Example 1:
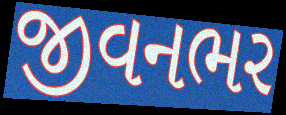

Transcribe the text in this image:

જીવનભર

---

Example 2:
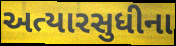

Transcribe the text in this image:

અત્યારસુધીના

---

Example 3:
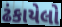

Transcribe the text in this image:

ઢંકાયેલો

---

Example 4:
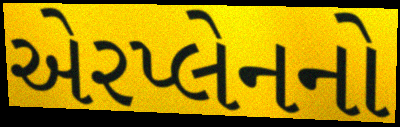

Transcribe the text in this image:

એરપ્લેનનો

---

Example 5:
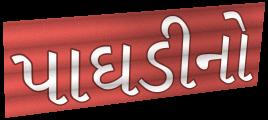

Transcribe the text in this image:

પાઘડીનો